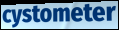
cystometer